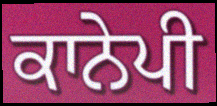
ਕਾਨੇਪੀ